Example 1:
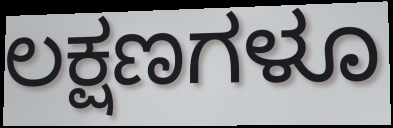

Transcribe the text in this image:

ಲಕ್ಷಣಗಳೂ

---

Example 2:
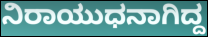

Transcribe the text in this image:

ನಿರಾಯುಧನಾಗಿದ್ದ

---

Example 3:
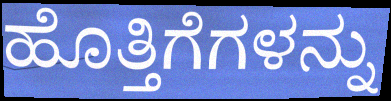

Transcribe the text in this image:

ಹೊತ್ತಿಗೆಗಳನ್ನು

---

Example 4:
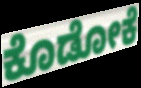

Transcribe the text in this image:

ಕೊಡೋಕೆ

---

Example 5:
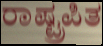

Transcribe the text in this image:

ರಾಷ್ಟ್ರಪಿತ